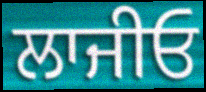
ਲਾਜੀਓ